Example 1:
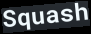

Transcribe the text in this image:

Squash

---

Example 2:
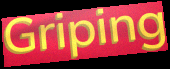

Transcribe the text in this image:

Griping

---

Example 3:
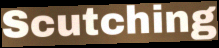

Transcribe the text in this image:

Scutching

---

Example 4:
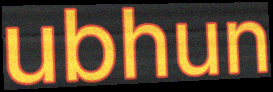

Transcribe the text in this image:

ubhun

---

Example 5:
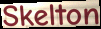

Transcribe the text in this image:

Skelton